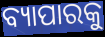
ବ୍ୟାପାରକୁ